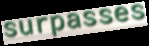
surpasses